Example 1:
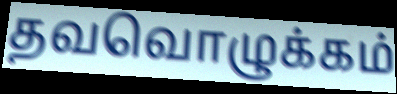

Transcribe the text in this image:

தவவொழுக்கம்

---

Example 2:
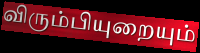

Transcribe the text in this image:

விரும்பியுறையும்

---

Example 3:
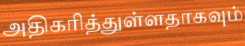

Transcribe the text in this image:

அதிகரித்துள்ளதாகவும்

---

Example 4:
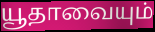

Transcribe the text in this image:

யூதாவையும்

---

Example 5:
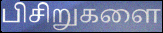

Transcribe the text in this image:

பிசிறுகளை